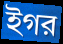
ইগর